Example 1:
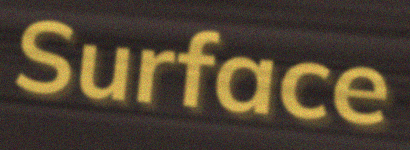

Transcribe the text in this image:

Surface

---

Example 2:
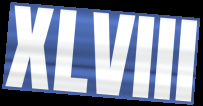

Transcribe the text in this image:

XLVIII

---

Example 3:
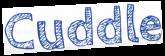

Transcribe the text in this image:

Cuddle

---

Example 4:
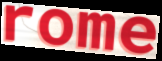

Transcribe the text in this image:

rome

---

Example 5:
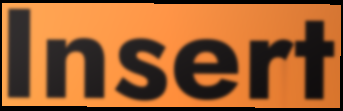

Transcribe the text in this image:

Insert